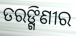
ତରଙ୍ଗିଣୀର